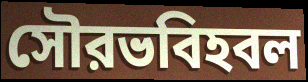
সৌরভবিহবল